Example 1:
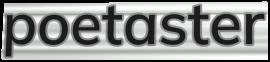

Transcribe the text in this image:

poetaster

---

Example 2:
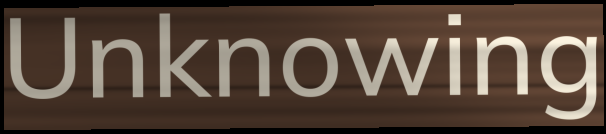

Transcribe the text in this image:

Unknowing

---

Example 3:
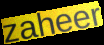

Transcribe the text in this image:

zaheer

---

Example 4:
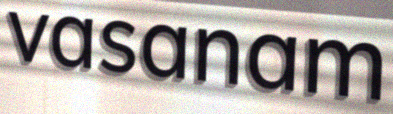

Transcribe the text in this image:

vasanam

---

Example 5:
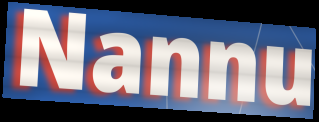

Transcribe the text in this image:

Nannu